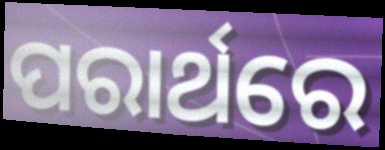
ପରାର୍ଥରେ